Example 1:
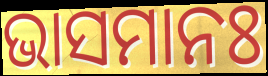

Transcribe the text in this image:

ଭାସମାନଃ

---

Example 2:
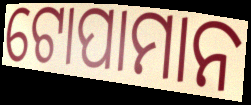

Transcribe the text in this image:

ଟୋପାମାନ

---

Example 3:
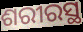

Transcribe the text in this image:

ଶରୀରସ୍ଥ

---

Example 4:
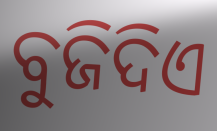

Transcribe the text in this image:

ବୁଜିଦିଏ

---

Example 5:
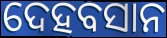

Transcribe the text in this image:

ଦେହବସାନ